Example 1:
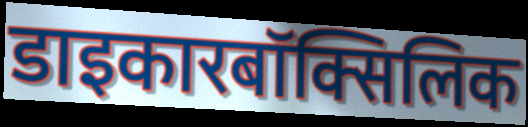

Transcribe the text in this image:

डाइकारबॉक्सिलिक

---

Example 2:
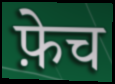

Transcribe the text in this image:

फ़ेच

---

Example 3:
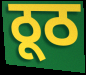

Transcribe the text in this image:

ठूठ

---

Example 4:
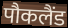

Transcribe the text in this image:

पौकलैंड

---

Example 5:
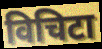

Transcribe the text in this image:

विचिटा